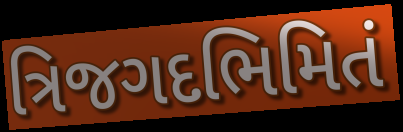
ત્રિજગદભિમિતં